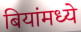
बियांमध्ये